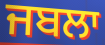
ਜਬਲਾ